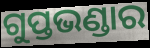
ଗୁପ୍ତଭଣ୍ଡାର